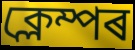
ক্লেম্পৰ